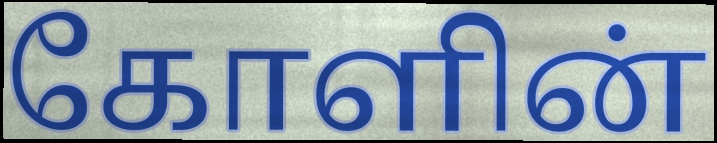
கோளின்